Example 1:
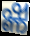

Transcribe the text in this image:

ഷ്ണ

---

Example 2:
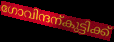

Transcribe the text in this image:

ഗോവിന്ദന്കുട്ടിക്ക്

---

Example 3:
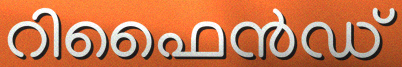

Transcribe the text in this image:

റിഫൈൻഡ്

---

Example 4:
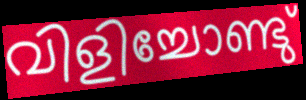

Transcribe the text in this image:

വിളിച്ചോണ്ടു്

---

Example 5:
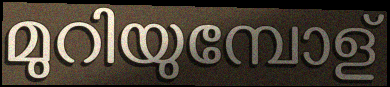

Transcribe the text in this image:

മുറിയുമ്പോള്